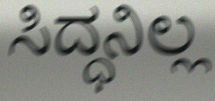
ಸಿದ್ಧನಿಲ್ಲ